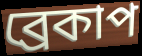
ব্রেকাপ